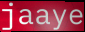
jaaye